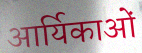
आर्यिकाओं